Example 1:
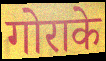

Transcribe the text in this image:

गोराके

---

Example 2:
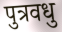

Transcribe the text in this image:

पुत्रवधु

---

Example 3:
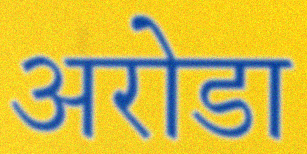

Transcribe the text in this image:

अरोडा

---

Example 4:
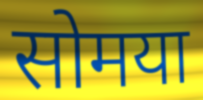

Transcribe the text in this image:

सोमया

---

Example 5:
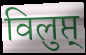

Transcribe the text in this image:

विलुप्त्